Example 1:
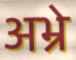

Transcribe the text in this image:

अभ्रे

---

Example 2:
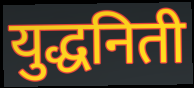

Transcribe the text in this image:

युद्धनिती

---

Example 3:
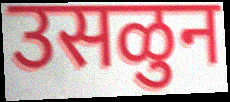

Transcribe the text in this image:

उसळुन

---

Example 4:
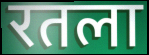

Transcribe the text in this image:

रतला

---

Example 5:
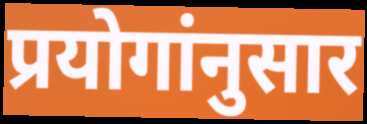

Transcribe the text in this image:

प्रयोगांनुसार